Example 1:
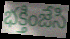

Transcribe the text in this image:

భక్తింజేసి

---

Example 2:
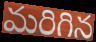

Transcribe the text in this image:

మరిగిన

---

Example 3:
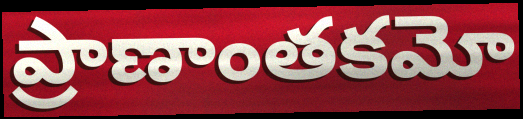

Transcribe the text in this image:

ప్రాణాంతకమో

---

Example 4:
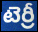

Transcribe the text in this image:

టెర్రీ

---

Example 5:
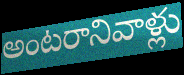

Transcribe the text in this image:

అంటరానివాళ్లు